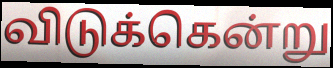
விடுக்கென்று